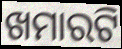
ଖମାରଟି